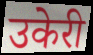
उकेरी